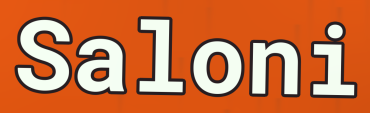
Saloni